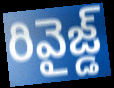
రివైజ్డ్